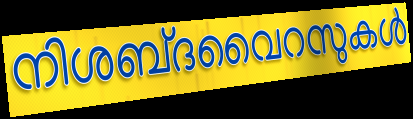
നിശബ്‌ദവൈറസുകൾ